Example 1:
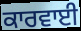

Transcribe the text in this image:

ਕਾਰਵਾਈ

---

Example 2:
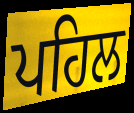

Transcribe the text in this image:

ਪਹਿਲ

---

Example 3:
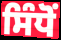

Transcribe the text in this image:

ਸਿੰਧੋਂ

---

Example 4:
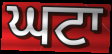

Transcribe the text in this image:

ਘਟਾ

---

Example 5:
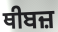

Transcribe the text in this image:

ਥੀਬਜ਼